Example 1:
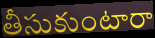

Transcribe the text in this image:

తీసుకుంటారా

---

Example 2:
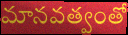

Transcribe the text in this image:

మానవత్వంతో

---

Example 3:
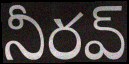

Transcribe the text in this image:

నీరవ్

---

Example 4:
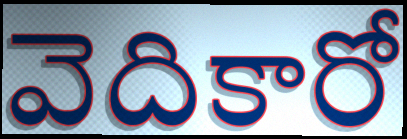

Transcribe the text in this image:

వెదికారో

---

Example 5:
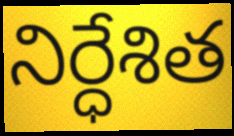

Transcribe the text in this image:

నిర్ధేశిత